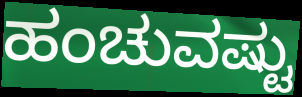
ಹಂಚುವಷ್ಟು